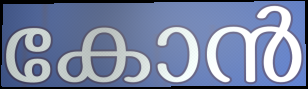
കോൻ